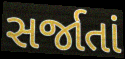
સર્જાતાં